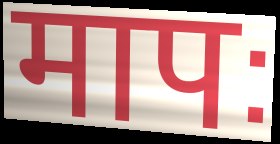
मापः